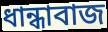
ধান্ধাবাজ